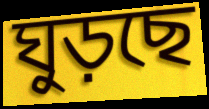
ঘুড়ছে